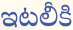
ఇటలీకి